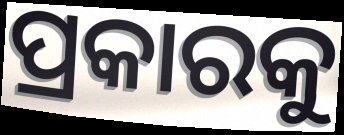
ପ୍ରକାରକୁ